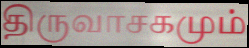
திருவாசகமும்